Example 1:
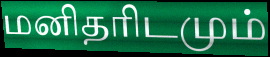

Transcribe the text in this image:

மனிதரிடமும்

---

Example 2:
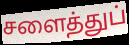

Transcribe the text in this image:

சளைத்துப்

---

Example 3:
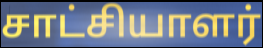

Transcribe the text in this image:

சாட்சியாளர்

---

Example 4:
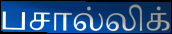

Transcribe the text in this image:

பசால்லிக்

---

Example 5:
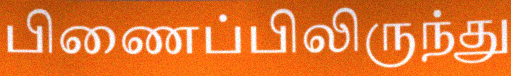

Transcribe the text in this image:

பிணைப்பிலிருந்து